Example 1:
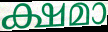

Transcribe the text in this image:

ക്ഷമാ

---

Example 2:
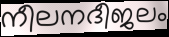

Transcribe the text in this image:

നീലനദീജലം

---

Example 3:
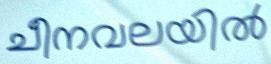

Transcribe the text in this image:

ചീനവലയിൽ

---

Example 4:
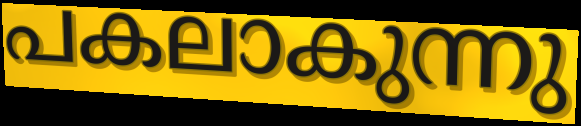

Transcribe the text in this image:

പകലാകുന്നു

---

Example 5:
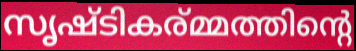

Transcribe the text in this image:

സൃഷ്ടികര്മ്മത്തിന്റെ